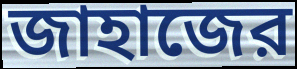
জাহাজের